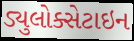
ડ્યુલોક્સેટાઇન